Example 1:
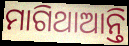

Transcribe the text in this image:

ମାଗିଥାଆନ୍ତି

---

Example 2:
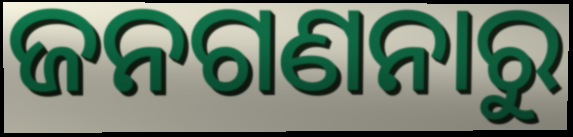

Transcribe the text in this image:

ଜନଗଣନାରୁ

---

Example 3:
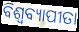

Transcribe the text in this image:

ବିଶ୍ୱବ୍ୟାପୀତା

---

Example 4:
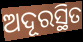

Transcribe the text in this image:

ଅଦୂରସ୍ଥିତ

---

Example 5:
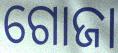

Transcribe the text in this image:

ଗୋଜା